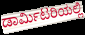
ಡಾರ್ಮಿಟರಿಯಲ್ಲಿ